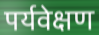
पर्यवेक्षण